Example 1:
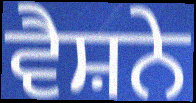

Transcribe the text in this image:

ਵੈਸ਼ਨੇ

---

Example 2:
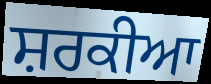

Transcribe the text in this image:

ਸ਼ਰਕੀਆ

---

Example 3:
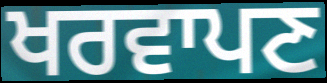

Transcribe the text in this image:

ਖਰਵਾਪਣ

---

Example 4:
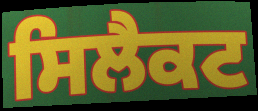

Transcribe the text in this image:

ਸਿਲੈਕਟ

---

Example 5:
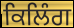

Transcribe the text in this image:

ਕਿਲਿੰਗ